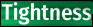
Tightness